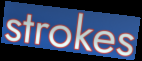
strokes